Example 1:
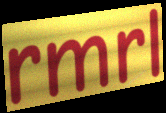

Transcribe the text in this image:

rmrl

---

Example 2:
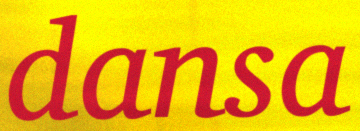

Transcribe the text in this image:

dansa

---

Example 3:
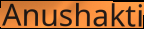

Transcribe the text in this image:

Anushakti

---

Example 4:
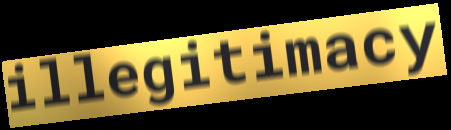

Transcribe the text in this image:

illegitimacy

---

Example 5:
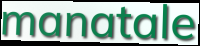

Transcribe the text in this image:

manatale